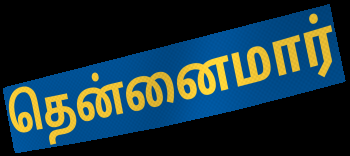
தென்னைமார்